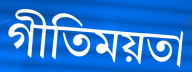
গীতিময়তা